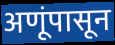
अणूंपासून